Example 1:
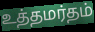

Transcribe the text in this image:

உத்தமர்தம்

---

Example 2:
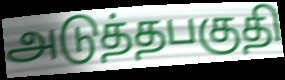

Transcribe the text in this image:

அடுத்தபகுதி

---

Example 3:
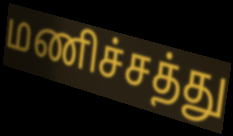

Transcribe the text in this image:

மணிச்சத்து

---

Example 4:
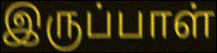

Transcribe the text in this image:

இருப்பாள்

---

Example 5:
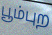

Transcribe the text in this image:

பூம்புற